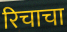
रिचाचा